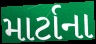
માર્ટાના